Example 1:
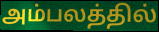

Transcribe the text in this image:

அம்பலத்தில்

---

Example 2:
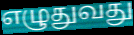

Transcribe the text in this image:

எழுதுவது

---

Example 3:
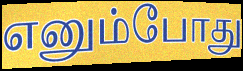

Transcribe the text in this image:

எனும்போது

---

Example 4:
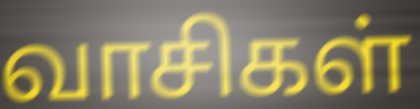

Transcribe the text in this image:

வாசிகள்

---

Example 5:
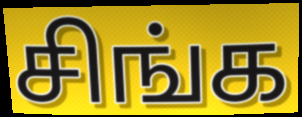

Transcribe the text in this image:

சிங்க